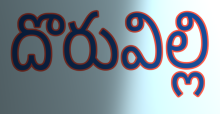
దొరువిల్లి